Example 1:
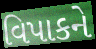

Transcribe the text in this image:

વિપાકને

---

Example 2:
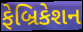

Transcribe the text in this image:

ફેબ્રિકેશન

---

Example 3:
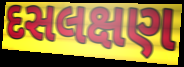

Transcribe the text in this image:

દસલક્ષણ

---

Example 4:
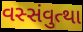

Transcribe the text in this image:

વસ્સંવુત્થા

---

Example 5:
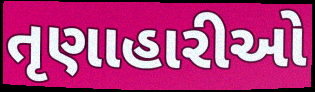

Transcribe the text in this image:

તૃણાહારીઓ